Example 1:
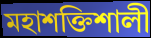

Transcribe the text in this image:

মহাশক্তিশালী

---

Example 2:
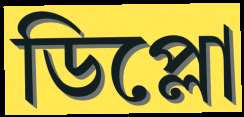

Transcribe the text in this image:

ডিপ্লো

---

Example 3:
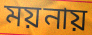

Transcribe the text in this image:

ময়নায়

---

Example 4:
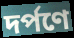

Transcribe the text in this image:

দর্পণে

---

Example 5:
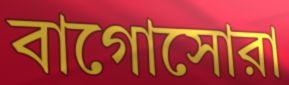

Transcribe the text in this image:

বাগোসোরা